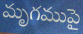
మృగముపై